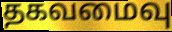
தகவமைவு